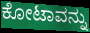
ಕೋಟಾವನ್ನು